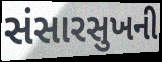
સંસારસુખની